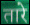
तारे